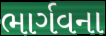
ભાર્ગવના